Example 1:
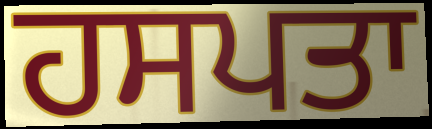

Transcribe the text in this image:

ਹਸਪਤਾ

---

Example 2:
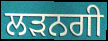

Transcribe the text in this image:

ਲੜਨਗੀ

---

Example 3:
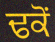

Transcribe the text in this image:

ਢਕੋਂ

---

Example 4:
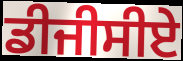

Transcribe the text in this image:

ਡੀਜੀਸੀਏ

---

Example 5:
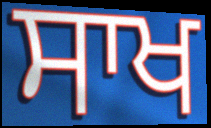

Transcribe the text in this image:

ਸਾਖ